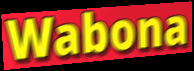
Wabona